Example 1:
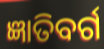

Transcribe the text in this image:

ଜ୍ଞାତିବର୍ଗ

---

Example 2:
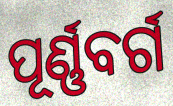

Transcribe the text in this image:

ପୂର୍ଣ୍ଣବର୍ଗ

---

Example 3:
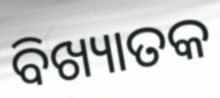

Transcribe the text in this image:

ବିଖ୍ୟାତକ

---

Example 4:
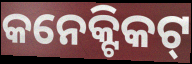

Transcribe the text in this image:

କନେକ୍ଟିକଟ୍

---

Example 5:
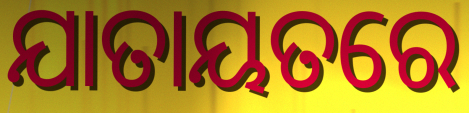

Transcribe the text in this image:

ଯାତାୟତରେ